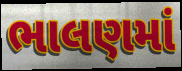
ભાલણમાં